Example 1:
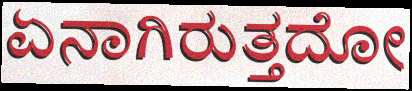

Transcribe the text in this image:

ಏನಾಗಿರುತ್ತದೋ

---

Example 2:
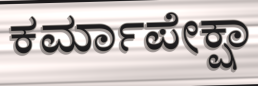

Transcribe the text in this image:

ಕರ್ಮಾಪೇಕ್ಷಾ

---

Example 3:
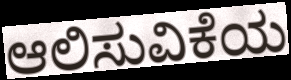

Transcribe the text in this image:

ಆಲಿಸುವಿಕೆಯ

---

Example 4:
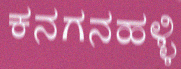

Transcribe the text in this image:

ಕನಗನಹಳ್ಳಿ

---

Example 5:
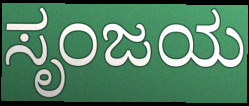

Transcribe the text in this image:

ಸೃಂಜಯ